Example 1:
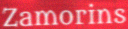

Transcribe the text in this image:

Zamorins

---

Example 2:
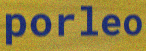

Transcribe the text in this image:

porleo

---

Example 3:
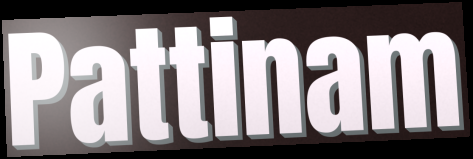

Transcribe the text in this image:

Pattinam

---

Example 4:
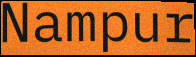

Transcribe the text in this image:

Nampur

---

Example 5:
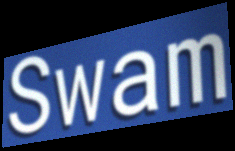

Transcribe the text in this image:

Swam